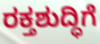
ರಕ್ತಶುದ್ಧಿಗೆ